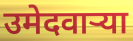
उमेदवार्‍या